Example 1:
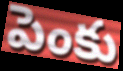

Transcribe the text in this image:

పెంకు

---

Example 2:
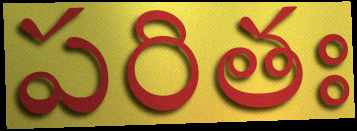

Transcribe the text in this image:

పరితః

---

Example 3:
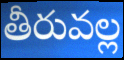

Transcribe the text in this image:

తీరువల్ల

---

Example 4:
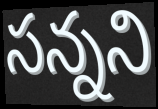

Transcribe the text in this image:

సన్నని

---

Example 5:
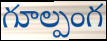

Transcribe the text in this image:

గూల్పంగ